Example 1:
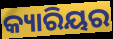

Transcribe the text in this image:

କ୍ୟାରିୟର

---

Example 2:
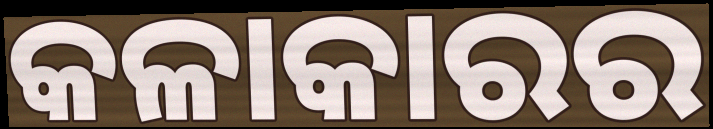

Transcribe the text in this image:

କଳାକାରର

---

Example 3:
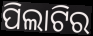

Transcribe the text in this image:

ପିଲାଟିର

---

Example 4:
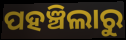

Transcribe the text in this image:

ପହଞ୍ଚିଲାରୁ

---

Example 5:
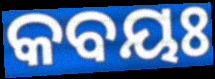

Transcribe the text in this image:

କବୟଃ